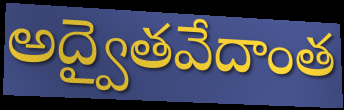
అద్వైతవేదాంత